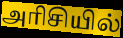
அரிசியில்